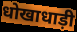
धोखाधाड़ी